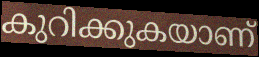
കുറിക്കുകയാണ്